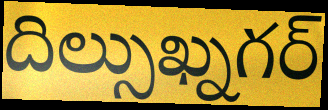
దిల్సుఖ్నగర్